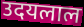
उदयलाल